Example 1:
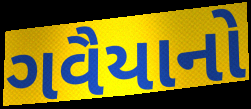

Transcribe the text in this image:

ગવૈયાનો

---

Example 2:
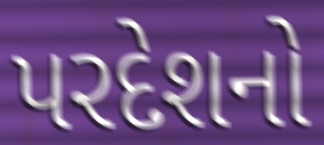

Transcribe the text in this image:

પરદેશનો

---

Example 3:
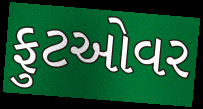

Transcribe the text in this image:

ફુટઓવર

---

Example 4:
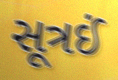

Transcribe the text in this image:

સૂત્રઈં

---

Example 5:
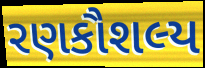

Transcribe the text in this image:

રણકૌશલ્ય